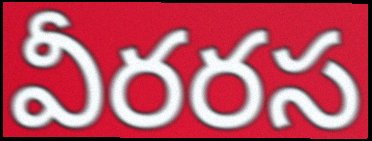
వీరరస